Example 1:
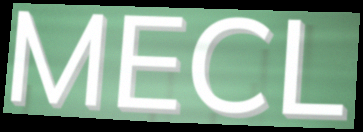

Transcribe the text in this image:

MECL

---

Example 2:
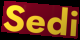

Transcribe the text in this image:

Sedi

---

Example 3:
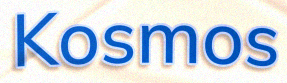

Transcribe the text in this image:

Kosmos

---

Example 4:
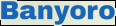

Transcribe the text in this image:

Banyoro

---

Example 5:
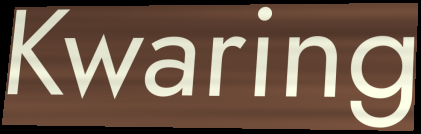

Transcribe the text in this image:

Kwaring